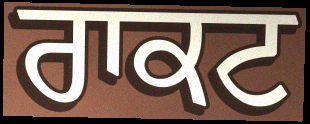
ਰਾਕਟ